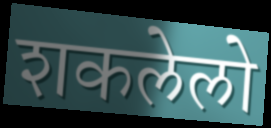
शकलेलो